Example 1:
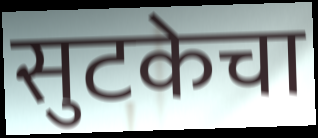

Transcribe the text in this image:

सुटकेचा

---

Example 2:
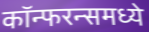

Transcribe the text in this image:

कॉन्फरन्समध्ये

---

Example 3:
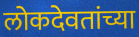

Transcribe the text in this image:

लोकदेवतांच्या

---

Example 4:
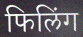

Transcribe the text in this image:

फिलिंग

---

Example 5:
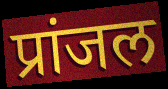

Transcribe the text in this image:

प्रांजल